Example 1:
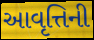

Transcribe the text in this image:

આવૃત્તિની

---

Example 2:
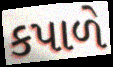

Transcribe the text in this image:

કપાળે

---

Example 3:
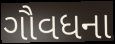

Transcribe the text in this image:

ગૌવધના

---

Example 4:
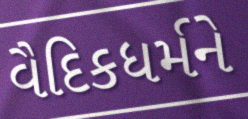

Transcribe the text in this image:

વૈદિકધર્મને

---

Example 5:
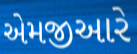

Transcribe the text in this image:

એમજીઆરે